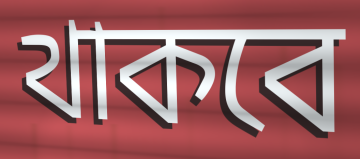
থাকবে